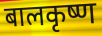
बालकृष्ण